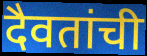
दैवतांची